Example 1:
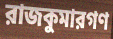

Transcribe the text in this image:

রাজকুমারগণ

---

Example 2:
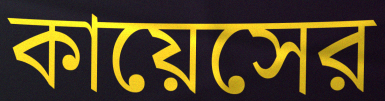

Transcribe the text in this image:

কায়েসের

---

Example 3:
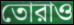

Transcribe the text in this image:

তোরাও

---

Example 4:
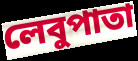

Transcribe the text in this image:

লেবুপাতা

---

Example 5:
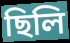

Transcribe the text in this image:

ছিলি